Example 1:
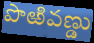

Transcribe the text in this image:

పొఱివణ్డు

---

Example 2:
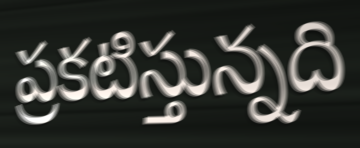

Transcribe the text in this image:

ప్రకటిస్తున్నది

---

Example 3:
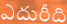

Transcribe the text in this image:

ఎదురీది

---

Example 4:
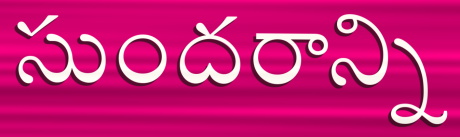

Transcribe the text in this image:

సుందరాన్ని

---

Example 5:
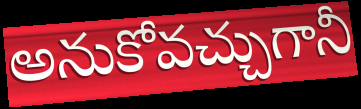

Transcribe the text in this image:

అనుకోవచ్చుగానీ